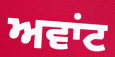
ਅਵਾਂਟ